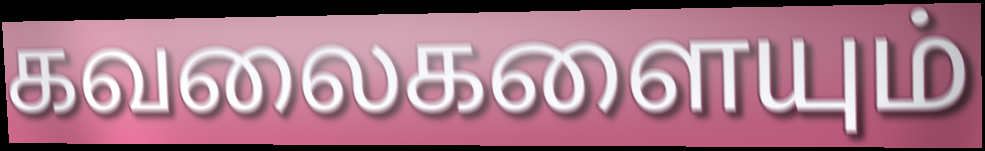
கவலைகளையும்